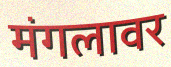
मंगलावर